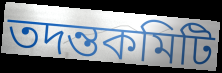
তদন্তকমিটি